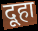
दूहा